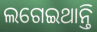
ଲଗେଇଥାନ୍ତି